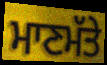
ਮਾਣਮੱਤੇ